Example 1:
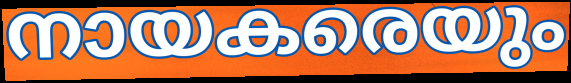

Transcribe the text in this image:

നായകരെയും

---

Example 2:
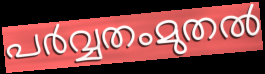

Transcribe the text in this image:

പർവ്വതംമുതൽ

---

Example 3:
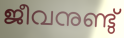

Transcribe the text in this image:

ജീവനുണ്ടു്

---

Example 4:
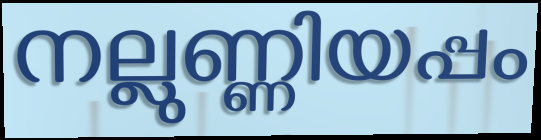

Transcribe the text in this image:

നല്ലുണ്ണിയപ്പം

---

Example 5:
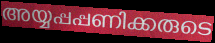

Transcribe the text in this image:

അയ്യപ്പപ്പണിക്കരുടെ